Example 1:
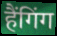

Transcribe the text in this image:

हैंगिंग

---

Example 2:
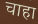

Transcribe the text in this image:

चाहा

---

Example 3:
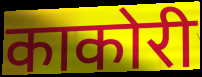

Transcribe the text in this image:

काकोरी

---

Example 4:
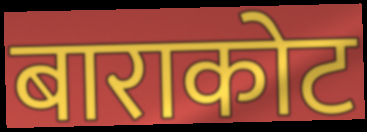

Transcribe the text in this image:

बाराकोट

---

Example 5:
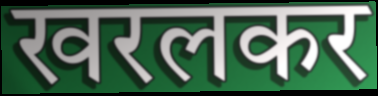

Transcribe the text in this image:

खरलकर